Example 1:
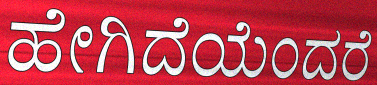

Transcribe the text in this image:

ಹೇಗಿದೆಯೆಂದರೆ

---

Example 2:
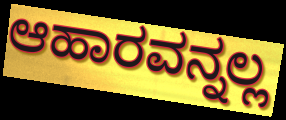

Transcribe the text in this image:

ಆಹಾರವನ್ನಲ್ಲ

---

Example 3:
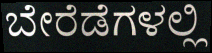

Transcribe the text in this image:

ಬೇರೆಡೆಗಳಲ್ಲಿ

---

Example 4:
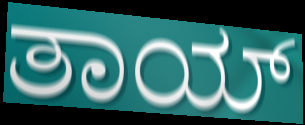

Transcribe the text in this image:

ತಾಯ್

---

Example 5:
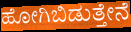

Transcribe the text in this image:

ಹೋಗಿಬಿಡುತ್ತೇನೆ